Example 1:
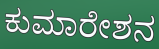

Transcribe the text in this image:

ಕುಮಾರೇಶನ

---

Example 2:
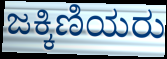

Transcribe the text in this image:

ಜಕ್ಕಿಣಿಯರು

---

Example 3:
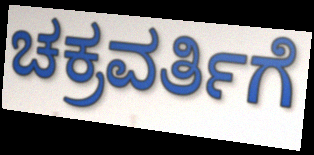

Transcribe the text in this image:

ಚಕ್ರವರ್ತಿಗೆ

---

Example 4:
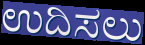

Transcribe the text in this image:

ಉದಿಸಲು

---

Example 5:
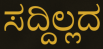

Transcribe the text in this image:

ಸದ್ದಿಲ್ಲದ